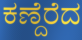
ಕಣ್ದೆರೆದ